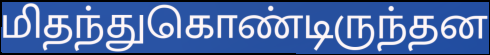
மிதந்துகொண்டிருந்தன